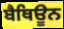
ਬੈਥਿਊਨ